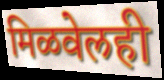
मिळवेलही